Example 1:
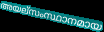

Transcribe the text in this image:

അയല്സംസ്ഥാനമായ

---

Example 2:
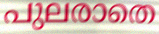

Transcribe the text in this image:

പുലരാതെ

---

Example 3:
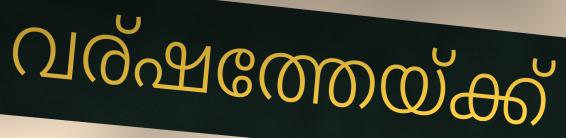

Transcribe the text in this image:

വര്ഷത്തേയ്ക്ക്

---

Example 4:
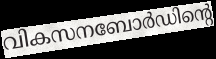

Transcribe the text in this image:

വികസനബോർഡിന്റെ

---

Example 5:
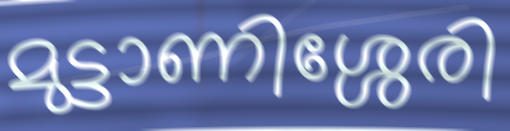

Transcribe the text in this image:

മുട്ടാണിശ്ശേരി